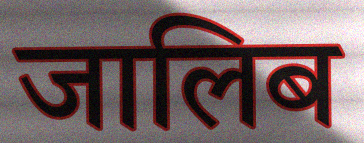
जालिब